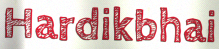
Hardikbhai